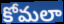
కోమలా